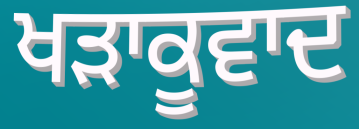
ਖੜਾਕੂਵਾਦ